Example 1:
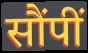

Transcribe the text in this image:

सौंपीं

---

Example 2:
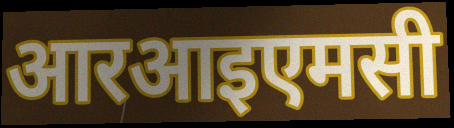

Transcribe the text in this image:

आरआइएमसी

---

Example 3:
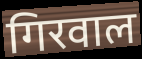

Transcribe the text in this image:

गिरवाल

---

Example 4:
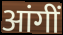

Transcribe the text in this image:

आंगीं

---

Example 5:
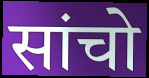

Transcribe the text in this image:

सांचो